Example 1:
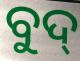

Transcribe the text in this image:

ବୁଦ୍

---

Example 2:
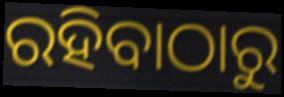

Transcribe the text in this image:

ରହିବାଠାରୁ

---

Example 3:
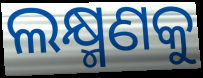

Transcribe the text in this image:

ଲକ୍ଷ୍ମଣକୁ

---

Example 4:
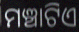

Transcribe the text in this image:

ମଞ୍ଚାଟିଏ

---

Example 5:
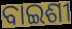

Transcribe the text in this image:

ବାଇଶୀ